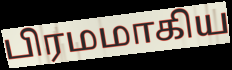
பிரமமாகிய